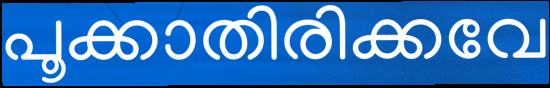
പൂക്കാതിരിക്കവേ